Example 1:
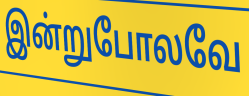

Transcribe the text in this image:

இன்றுபோலவே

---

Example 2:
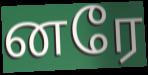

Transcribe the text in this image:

னரே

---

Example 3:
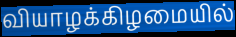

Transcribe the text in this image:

வியாழக்கிழமையில்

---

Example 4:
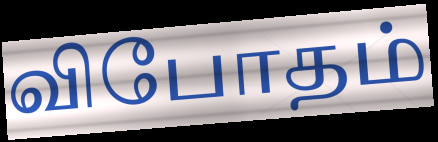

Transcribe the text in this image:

விபோதம்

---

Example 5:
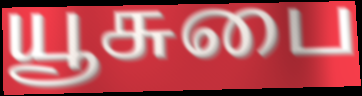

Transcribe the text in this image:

யூசுபை